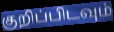
குறிப்பிடவும்